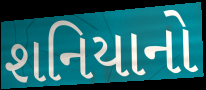
શનિયાનો